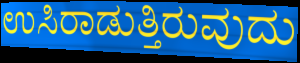
ಉಸಿರಾಡುತ್ತಿರುವುದು